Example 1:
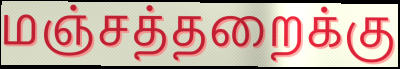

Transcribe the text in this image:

மஞ்சத்தறைக்கு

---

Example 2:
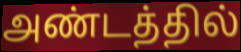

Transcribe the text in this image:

அண்டத்தில்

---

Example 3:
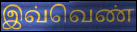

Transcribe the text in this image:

இவ்வெண்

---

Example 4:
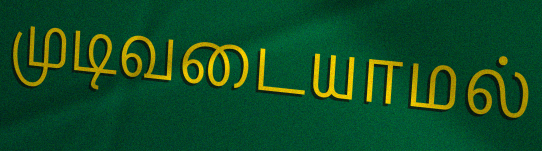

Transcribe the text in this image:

முடிவடையாமல்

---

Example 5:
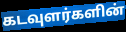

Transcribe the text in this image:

கடவுளர்களின்